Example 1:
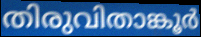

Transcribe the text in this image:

തിരുവിതാങ്കൂർ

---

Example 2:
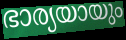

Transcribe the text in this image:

ഭാര്യയായും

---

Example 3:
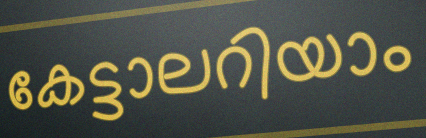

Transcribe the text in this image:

കേട്ടാലറിയാം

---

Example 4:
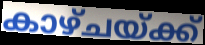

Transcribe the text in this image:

കാഴ്ചയ്ക്ക്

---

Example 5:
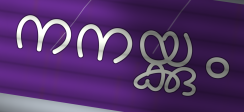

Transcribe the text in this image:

നനയ്ക്കും